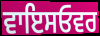
ਵਾਇਸਓਵਰ